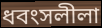
ধবংসলীলা